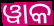
ୱାକ